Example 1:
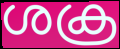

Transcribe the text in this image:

ശക്ര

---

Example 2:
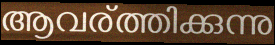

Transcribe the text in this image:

ആവര്ത്തിക്കുന്നു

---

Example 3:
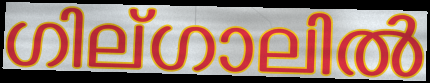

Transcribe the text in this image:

ഗില്ഗാലിൽ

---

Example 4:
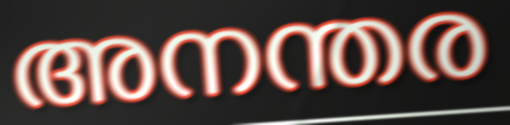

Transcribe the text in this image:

അനന്തര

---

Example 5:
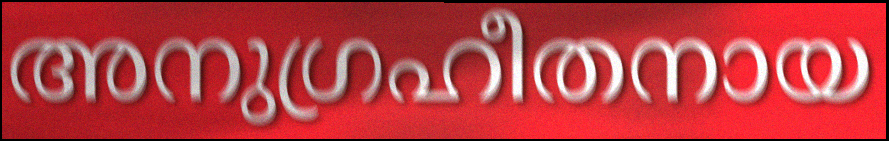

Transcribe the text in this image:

അനുഗ്രഹീതനായ